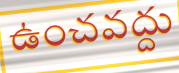
ఉంచవద్దు